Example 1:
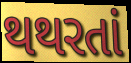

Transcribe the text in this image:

થથરતાં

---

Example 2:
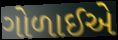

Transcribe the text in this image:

ગોળાઈએ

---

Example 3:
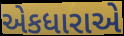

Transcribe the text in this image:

એકધારાએ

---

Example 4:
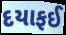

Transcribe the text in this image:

દયાફઈ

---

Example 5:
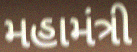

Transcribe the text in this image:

મહામંત્રી